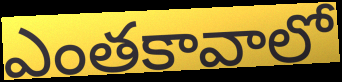
ఎంతకావాలో